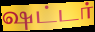
ஷட்டர்